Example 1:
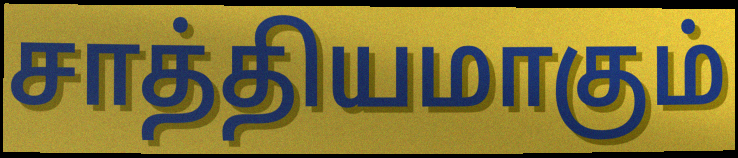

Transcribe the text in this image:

சாத்தியமாகும்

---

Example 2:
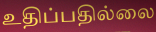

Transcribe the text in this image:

உதிப்பதில்லை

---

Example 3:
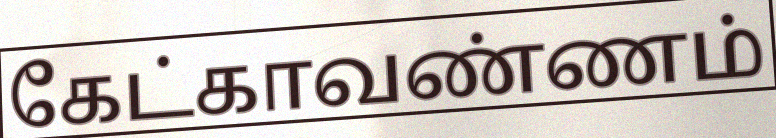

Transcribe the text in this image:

கேட்காவண்ணம்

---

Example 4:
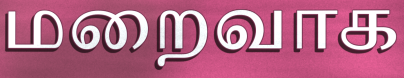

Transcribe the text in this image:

மறைவாக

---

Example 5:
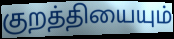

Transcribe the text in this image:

குறத்தியையும்